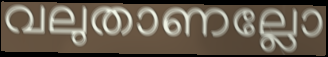
വലുതാണല്ലോ